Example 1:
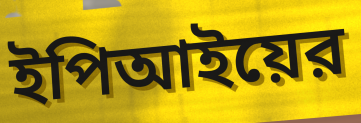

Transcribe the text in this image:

ইপিআইয়ের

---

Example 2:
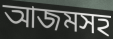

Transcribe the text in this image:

আজমসহ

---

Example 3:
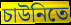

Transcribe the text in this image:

চাউনিতে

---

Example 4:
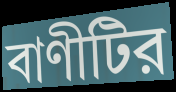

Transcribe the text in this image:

বাণীটির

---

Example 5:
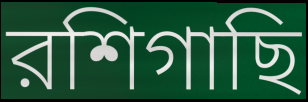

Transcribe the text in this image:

রশিগাছি